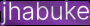
jhabuke